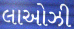
લાઓઝી